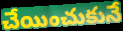
చేయించుకునే